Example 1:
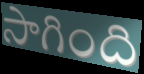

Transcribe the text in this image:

సాగింది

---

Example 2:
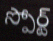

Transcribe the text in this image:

స్పోర్ట్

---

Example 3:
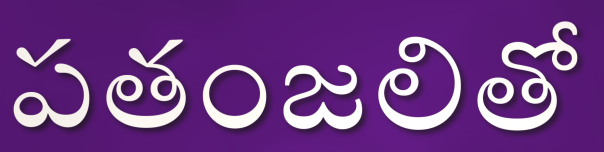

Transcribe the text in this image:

పతంజలితో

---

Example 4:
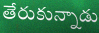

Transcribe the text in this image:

తేరుకున్నాడు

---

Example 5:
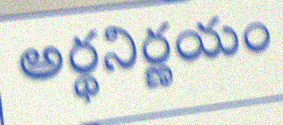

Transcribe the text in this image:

అర్థనిర్ణయం